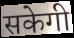
सकेगी